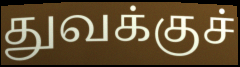
துவக்குச்